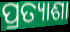
ପ୍ରତ୍ୟାଶା